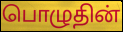
பொழுதின்